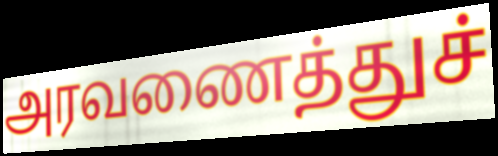
அரவணைத்துச்